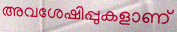
അവശേഷിപ്പുകളാണ്